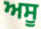
ਅਸੂ